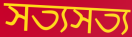
সত্যসত্য